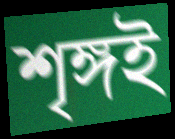
শৃঙ্গই